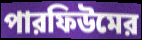
পারফিউমের